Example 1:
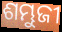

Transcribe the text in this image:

ଶମ୍ଭୁଜୀ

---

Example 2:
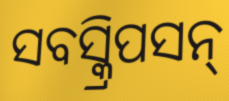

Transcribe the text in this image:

ସବସ୍କ୍ରିପସନ୍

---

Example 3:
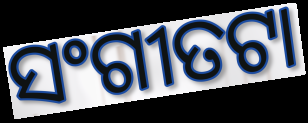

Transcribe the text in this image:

ସଂଗୀତଟା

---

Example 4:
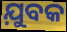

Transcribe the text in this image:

ଯ଼ୁବକ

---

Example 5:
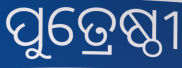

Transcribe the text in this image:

ପୁତ୍ରେଷ୍ଠୀ